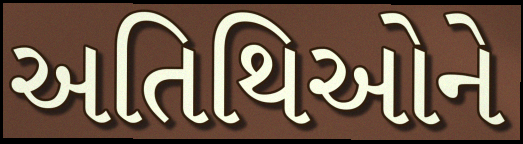
અતિથિઓને